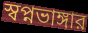
স্বপ্নভাঙ্গার